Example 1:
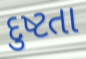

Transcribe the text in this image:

દુષ્ટતા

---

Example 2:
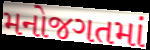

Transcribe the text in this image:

મનોજગતમાં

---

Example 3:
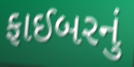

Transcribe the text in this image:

ફાઈબરનું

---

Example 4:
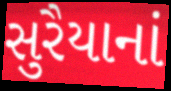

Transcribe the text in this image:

સુરૈયાનાં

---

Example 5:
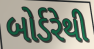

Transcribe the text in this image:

બોર્ડરેથી